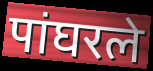
पांघरले